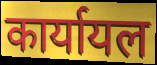
कार्यायल